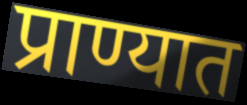
प्राण्यात